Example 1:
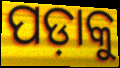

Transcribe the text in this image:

ପଡ଼ାକୁ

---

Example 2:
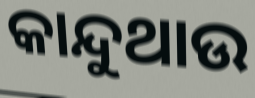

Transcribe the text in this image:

କାନ୍ଦୁଥାଉ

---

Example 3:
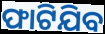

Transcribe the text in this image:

ଫାଟିଯିବ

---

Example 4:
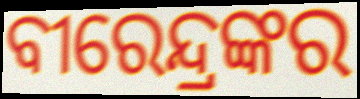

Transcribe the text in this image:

ବୀରେନ୍ଦ୍ରଙ୍କର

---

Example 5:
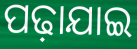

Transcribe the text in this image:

ପଢ଼ାଯାଇ